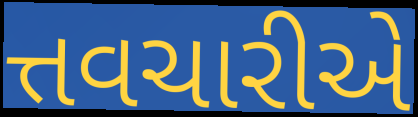
ત્તવચારીએ